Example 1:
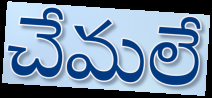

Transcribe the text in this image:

చేమలే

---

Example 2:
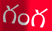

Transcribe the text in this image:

గంగ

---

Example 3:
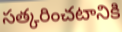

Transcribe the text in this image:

సత్కరించటానికి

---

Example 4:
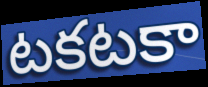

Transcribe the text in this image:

టకటకా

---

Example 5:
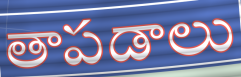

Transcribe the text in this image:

తాపడాలు